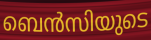
ബെൻസിയുടെ